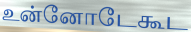
உன்னோடேகூட